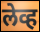
लेव्ह